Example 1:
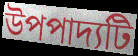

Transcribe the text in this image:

উপপাদ্যটি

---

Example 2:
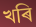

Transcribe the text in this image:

খৰি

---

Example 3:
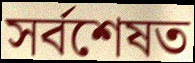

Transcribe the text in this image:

সৰ্বশেষত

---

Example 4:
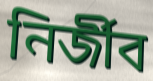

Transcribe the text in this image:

নিৰ্জীব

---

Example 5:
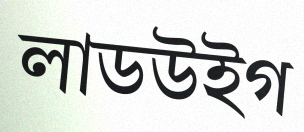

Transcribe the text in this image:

লাডউইগ